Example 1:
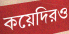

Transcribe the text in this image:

কয়েদিরও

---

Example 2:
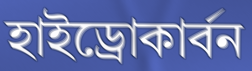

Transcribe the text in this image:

হাইড্রোকার্বন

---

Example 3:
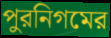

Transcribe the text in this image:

পুরনিগমের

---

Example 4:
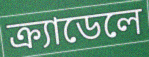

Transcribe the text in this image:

ক্র্যাডেলে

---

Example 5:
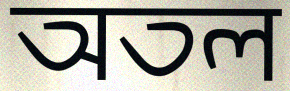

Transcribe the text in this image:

অতল